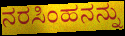
ನರಸಿಂಹನನ್ನು